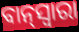
ବାନ୍‌ସ୍ୱାରା